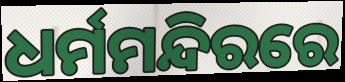
ଧର୍ମମନ୍ଦିରରେ